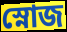
স্নোজ